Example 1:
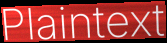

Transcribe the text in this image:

Plaintext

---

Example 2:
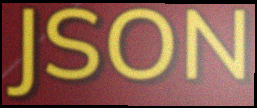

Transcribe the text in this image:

JSON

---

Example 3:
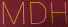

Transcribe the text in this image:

MDH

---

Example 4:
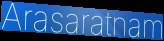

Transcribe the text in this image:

Arasaratnam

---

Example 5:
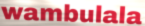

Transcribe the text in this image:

wambulala